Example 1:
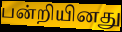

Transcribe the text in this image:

பன்றியினது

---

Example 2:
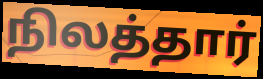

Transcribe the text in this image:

நிலத்தார்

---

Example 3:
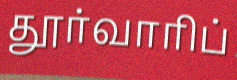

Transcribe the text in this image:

தூர்வாரிப்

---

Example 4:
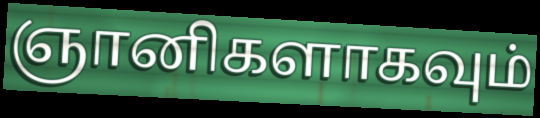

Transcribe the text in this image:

ஞானிகளாகவும்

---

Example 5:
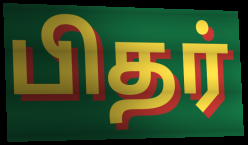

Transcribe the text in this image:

பிதர்